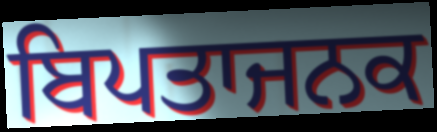
ਬਿਪਤਾਜਨਕ